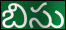
బిసు